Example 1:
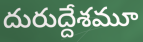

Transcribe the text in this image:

దురుద్దేశమూ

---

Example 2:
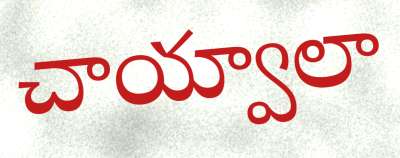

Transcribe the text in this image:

చాయ్వాలా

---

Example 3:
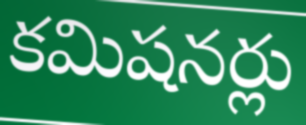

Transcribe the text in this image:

కమిషనర్లు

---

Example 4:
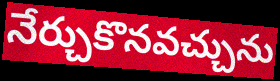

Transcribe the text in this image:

నేర్చుకొనవచ్చును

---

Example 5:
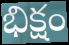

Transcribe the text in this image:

భిక్షం